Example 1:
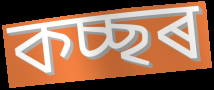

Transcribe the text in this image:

কচ্ছৰ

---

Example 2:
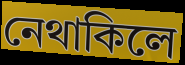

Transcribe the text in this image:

নেথাকিলে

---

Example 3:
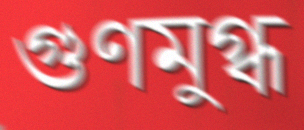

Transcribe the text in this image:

গুণমুগ্ধ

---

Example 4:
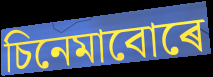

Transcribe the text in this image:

চিনেমাবোৰে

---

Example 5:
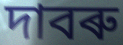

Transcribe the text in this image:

দাবৰু